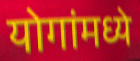
योगांमध्ये